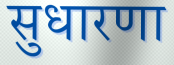
सुधारणा